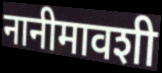
नानीमावशी